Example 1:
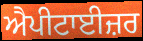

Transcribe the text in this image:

ਐਪੀਟਾਈਜ਼ਰ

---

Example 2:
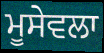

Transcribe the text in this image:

ਮੂਸੇਵਲਾ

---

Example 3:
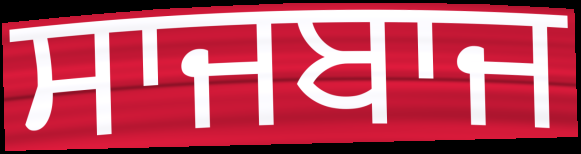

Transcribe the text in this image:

ਸਾਜਬਾਜ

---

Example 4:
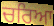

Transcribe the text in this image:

ਚਰਿਆ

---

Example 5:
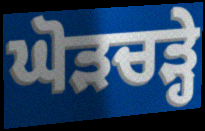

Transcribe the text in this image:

ਘੋੜਚੜ੍ਹੇ